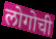
लोगोची